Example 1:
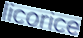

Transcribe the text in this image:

licorice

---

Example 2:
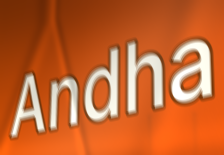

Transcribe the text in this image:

Andha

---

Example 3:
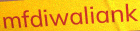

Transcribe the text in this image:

mfdiwaliank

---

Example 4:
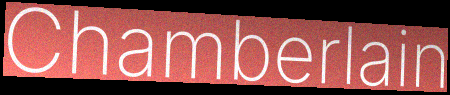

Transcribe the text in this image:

Chamberlain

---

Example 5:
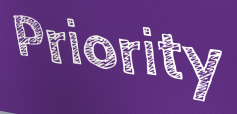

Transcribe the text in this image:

Priority